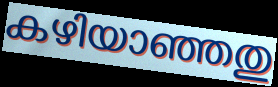
കഴിയാഞ്ഞതു